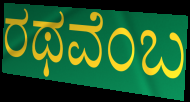
ರಥವೆಂಬ